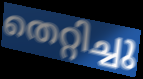
തെറ്റിച്ചു